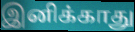
இனிக்காது